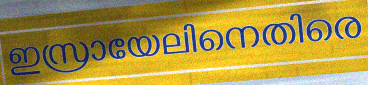
ഇസ്രായേലിനെതിരെ